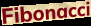
Fibonacci